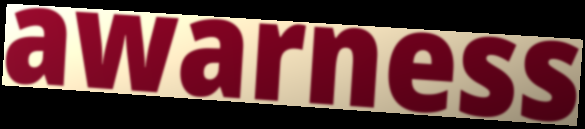
awarness